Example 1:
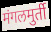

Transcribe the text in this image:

मंगलमुर्ती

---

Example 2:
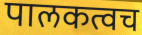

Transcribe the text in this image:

पालकत्वच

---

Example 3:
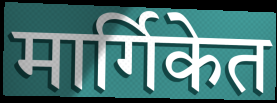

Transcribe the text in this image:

मार्गिकेत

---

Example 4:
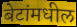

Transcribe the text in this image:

बेटांमधील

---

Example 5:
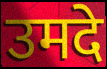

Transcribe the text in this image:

उमदे